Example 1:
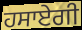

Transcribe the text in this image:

ਹਸਾਏਗੀ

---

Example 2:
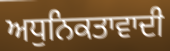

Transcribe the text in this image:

ਅਧੁਨਿਕਤਾਵਾਦੀ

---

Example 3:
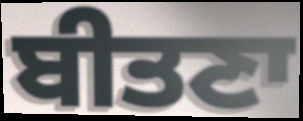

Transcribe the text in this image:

ਬੀਤਣਾ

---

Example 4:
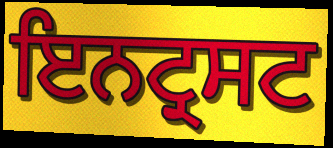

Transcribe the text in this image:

ਇਨਟ੍ਰਸਟ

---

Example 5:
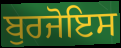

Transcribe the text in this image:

ਬੁਰਜੋਇਸ